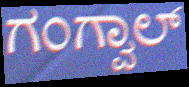
ಗಂಗ್ವಾಲ್